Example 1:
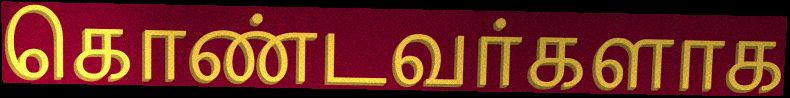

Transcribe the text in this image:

கொண்டவர்களாக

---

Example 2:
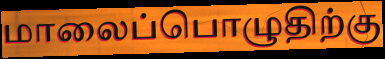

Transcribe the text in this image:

மாலைப்பொழுதிற்கு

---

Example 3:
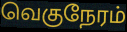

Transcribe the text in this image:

வெகுநேரம்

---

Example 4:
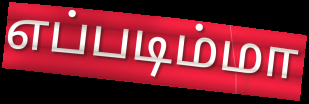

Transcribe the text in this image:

எப்படிம்மா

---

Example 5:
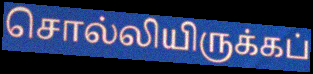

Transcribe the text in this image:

சொல்லியிருக்கப்